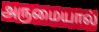
அருமையால்